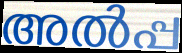
അൽപ്പ